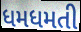
ધમધમતી